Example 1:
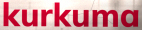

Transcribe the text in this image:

kurkuma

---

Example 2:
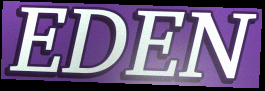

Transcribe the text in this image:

EDEN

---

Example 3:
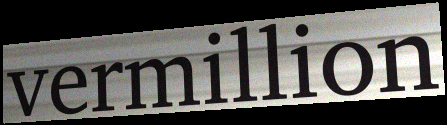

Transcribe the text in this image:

vermillion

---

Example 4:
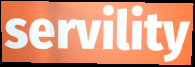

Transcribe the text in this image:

servility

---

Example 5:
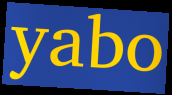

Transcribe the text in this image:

yabo